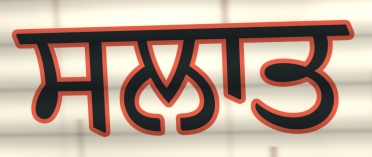
ਸਲਾਤ